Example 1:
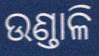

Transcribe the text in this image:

ଉଣ୍ଡାଳି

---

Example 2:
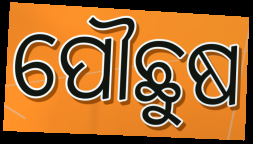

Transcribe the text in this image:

ପୌଛୁଷ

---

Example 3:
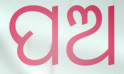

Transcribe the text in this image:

ପଅ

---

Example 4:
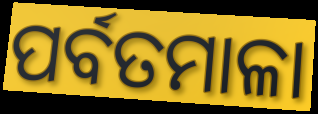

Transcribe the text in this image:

ପର୍ବତମାଳା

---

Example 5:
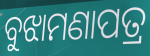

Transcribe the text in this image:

ବୁଝାମଣାପତ୍ର